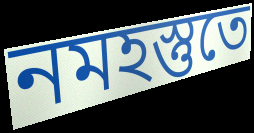
নমহস্তুতে